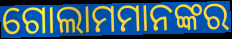
ଗୋଲାମମାନଙ୍କର